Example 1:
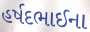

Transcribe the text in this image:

હર્ષદભાઈના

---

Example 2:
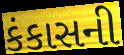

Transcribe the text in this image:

કંકાસની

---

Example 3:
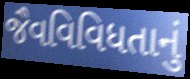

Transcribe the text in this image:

જૈવવિવિધતાનું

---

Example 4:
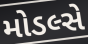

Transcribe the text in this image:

મોડલ્સે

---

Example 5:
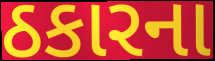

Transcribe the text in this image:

ઠકારના